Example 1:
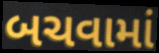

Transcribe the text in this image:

બચવામાં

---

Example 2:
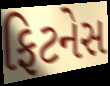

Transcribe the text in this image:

ફિટનેસ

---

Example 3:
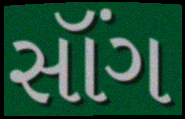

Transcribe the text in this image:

સૉંગ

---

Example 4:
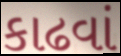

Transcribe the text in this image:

કાઢવાં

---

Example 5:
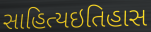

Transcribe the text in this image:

સાહિત્યઇતિહાસ